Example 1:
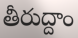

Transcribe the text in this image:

తీరుద్దాం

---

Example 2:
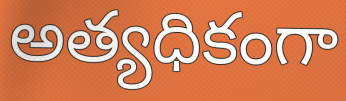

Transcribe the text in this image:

అత్యధికంగా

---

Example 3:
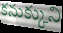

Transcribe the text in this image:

కనుక్కుని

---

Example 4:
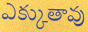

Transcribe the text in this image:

ఎక్కుతావు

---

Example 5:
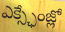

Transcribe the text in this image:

ఎక్స్ఛేంజ్లో